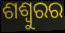
ଶଶ୍ୱୁରର